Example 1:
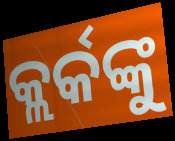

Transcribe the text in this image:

କ୍ଲର୍କଙ୍କୁ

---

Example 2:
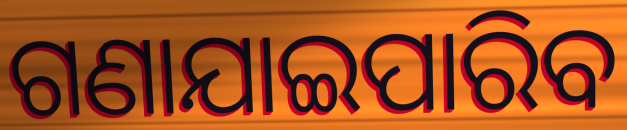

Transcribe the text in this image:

ଗଣାଯାଇପାରିବ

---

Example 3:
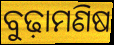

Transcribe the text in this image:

ବୁଢ଼ାମଣିଷ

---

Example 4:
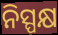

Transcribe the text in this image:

ନିସ୍ପକ୍ଷ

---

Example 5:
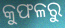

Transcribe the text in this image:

କୁଫଳରୁ